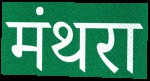
मंथरा